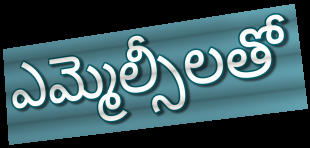
ఎమ్మెల్సీలతో